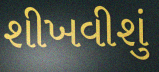
શીખવીશું